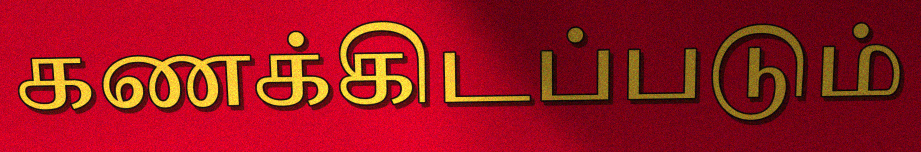
கணக்கிடப்படும்